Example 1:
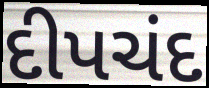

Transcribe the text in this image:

દીપચંદ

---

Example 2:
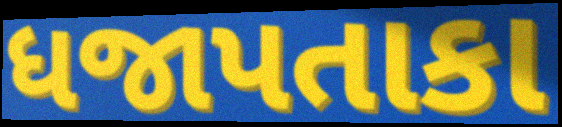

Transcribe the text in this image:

ધજાપતાકા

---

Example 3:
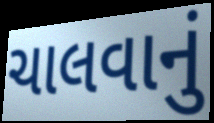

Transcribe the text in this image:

ચાલવાનું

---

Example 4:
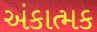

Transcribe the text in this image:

અંકાત્મક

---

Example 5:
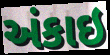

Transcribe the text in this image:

અંકાઇ